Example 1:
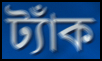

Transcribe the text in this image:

ট্যাঁক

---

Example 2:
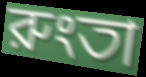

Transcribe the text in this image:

রুংতা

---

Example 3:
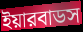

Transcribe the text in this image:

ইয়ারবাডস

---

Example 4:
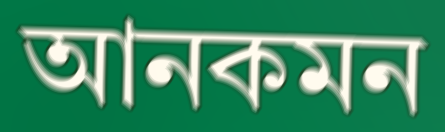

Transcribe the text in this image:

আনকমন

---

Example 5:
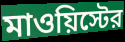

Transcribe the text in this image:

মাওয়িস্টের